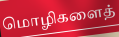
மொழிகளைத்